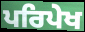
ਪਰਿਪੇਖ